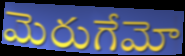
మెరుగేమో